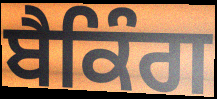
ਬੈਕਿੰਗ